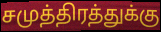
சமுத்திரத்துக்கு